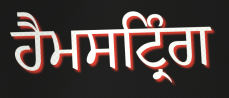
ਹੈਮਸਟ੍ਰਿੰਗ